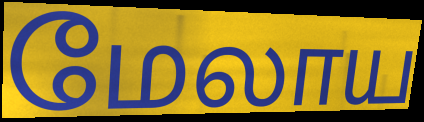
மேலாய